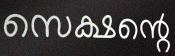
സെക്ഷന്റെ